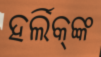
ହର୍ଲିକ୍‌ଙ୍କ